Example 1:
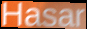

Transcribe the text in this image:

Hasar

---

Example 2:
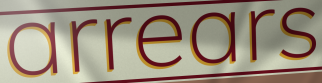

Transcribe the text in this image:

arrears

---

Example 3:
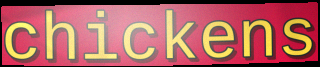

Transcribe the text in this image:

chickens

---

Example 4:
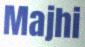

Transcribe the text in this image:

Majhi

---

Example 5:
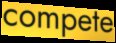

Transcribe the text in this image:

compete